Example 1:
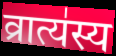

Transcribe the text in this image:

व्रात्य॑स्य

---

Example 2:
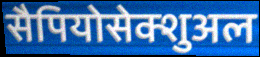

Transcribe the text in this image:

सैपियोसेक्शुअल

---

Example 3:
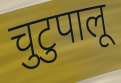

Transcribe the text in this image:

चुटुपालू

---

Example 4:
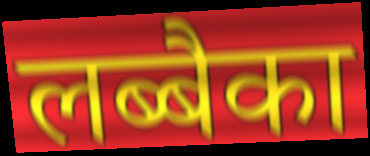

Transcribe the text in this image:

लब्बैका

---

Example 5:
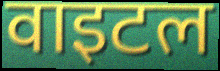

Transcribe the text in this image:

वाइटल